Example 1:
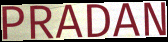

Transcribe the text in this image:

PRADAN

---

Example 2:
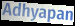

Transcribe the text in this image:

Adhyapan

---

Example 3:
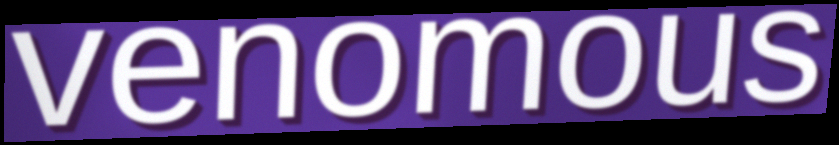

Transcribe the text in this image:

venomous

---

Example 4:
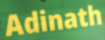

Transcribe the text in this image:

Adinath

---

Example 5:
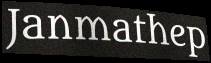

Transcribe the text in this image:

Janmathep